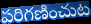
పరిగణించుట